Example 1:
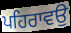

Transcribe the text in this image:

ਪਹਿਰਾਵਉ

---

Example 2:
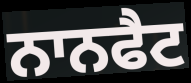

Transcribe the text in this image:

ਨਾਨਫੈਟ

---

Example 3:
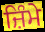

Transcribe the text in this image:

ਜ਼ਿੰਮੇ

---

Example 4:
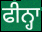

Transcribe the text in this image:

ਫੀਨ੍ਹਾ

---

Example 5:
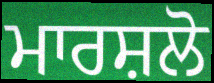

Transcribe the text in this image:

ਮਾਰਸ਼ਲੋ